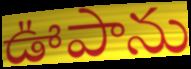
ఊపాను